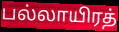
பல்லாயிரத்